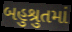
બહુશ્રુતમાં